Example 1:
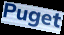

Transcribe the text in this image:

Puget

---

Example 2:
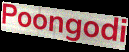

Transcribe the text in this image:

Poongodi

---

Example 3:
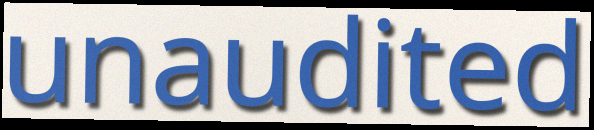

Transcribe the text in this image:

unaudited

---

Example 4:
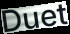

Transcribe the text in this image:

Duet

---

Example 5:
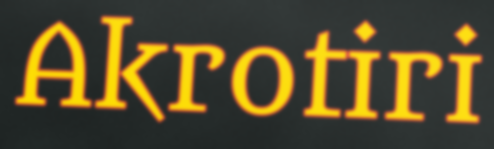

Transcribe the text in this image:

Akrotiri